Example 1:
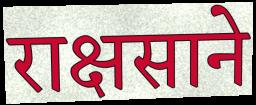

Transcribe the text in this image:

राक्षसाने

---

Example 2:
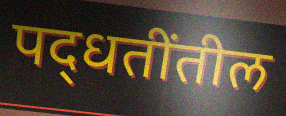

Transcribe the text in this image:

पद्धतींतील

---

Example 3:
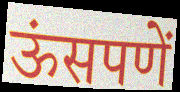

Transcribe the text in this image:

ऊंसपणें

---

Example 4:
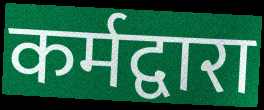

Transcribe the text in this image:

कर्मद्वारा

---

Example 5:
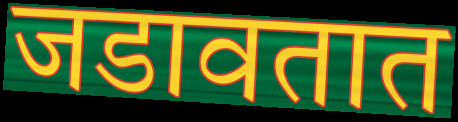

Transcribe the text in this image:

जडावतात